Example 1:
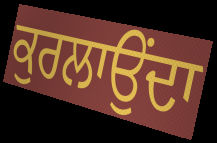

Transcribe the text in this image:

ਕੁਰਲਾਉਂਦਾ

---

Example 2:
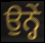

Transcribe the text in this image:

ਉਨ੍ਹੇਂ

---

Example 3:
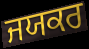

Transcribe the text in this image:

ਜਯਕਰ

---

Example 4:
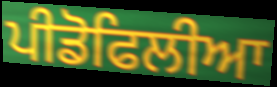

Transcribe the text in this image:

ਪੀਡੋਫਿਲੀਆ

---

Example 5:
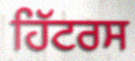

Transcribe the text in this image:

ਹਿੱਟਰਸ